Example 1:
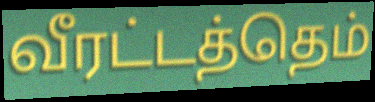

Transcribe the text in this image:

வீரட்டத்தெம்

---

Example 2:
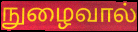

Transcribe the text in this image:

நுழைவால்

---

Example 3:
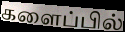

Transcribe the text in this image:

களைப்பில்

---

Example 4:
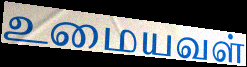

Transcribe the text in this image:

உமையவள்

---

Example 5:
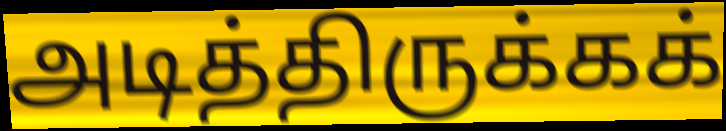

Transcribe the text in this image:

அடித்திருக்கக்